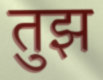
तुझ